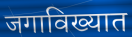
जगाविख्यात